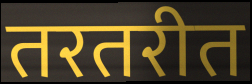
तरतरीत